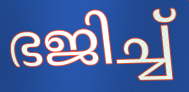
ഭജിച്ച്